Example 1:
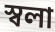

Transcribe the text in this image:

স্বলা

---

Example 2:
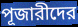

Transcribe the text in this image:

পূজারীদের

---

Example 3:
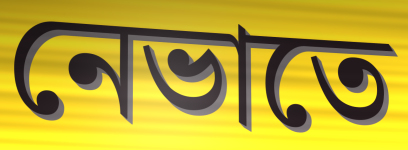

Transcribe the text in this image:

নেভাতে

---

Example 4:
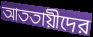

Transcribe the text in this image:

আততায়ীদের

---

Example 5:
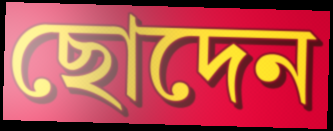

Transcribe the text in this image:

ছোদেন